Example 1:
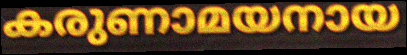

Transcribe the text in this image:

കരുണാമയനായ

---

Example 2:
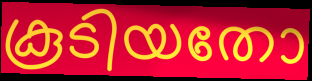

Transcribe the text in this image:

കൂടിയതോ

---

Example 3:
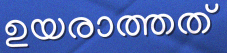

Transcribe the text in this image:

ഉയരാത്തത്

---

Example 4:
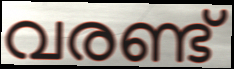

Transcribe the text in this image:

വരണ്ട്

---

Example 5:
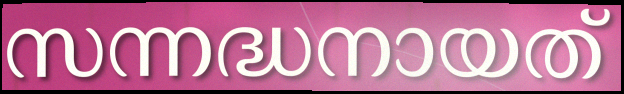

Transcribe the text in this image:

സന്നദ്ധനായത്